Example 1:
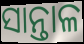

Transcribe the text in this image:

ସାନ୍ତାଳ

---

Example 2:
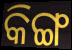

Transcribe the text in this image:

କିଙ୍ଗ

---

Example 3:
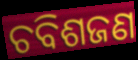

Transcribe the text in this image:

ଚବିଶଜଣ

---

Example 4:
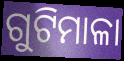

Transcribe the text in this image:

ଗୁଟିମାଳା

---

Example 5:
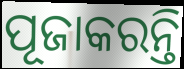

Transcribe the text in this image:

ପୂଜାକରନ୍ତି